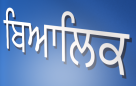
ਬਿਆਲਿਕ